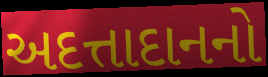
અદત્તાદાનનો